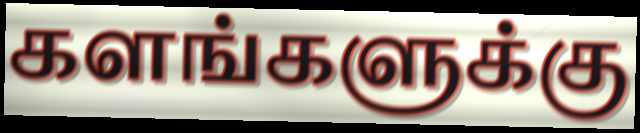
களங்களுக்கு